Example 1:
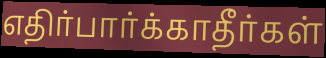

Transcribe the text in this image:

எதிர்பார்க்காதீர்கள்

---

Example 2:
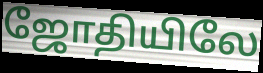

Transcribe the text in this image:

ஜோதியிலே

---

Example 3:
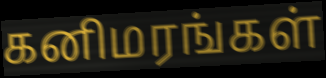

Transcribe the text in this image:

கனிமரங்கள்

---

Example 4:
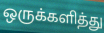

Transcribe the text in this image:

ஒருக்களித்து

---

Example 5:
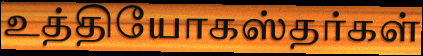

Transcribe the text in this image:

உத்தியோகஸ்தர்கள்